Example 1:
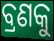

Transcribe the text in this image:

ବ୍ରଣକୁ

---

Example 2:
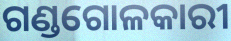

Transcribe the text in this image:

ଗଣ୍ଡଗୋଳକାରୀ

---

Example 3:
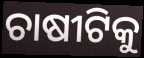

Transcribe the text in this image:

ଚାଷୀଟିକୁ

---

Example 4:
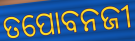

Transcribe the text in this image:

ତପୋବନଜୀ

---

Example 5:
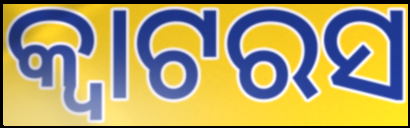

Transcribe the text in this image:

କ୍ୱାଟରସ